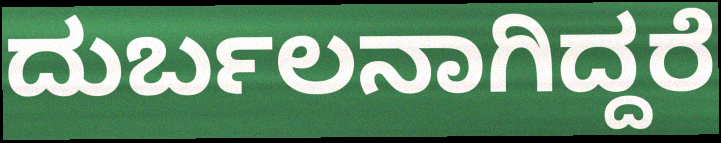
ದುರ್ಬಲನಾಗಿದ್ದರೆ